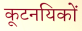
कूटनयिकों